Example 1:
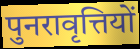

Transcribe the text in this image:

पुनरावृत्तियों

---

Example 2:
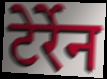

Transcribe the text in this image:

टेर्रेन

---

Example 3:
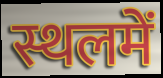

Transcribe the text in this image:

स्थलमें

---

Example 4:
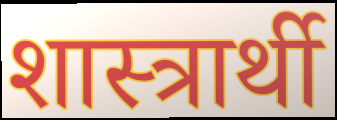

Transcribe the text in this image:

शास्त्रार्थी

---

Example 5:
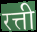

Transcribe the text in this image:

रत्ती